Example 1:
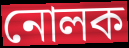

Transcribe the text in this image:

নোলক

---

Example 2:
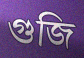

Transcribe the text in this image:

গুজি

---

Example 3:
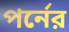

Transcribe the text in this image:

পর্নের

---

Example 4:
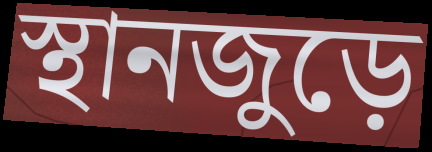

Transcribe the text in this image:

স্থানজুড়ে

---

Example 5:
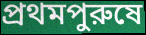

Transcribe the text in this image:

প্রথমপুরুষে